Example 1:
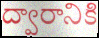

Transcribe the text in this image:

ద్వారానికి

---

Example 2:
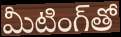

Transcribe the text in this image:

మీటింగ్‌తో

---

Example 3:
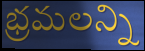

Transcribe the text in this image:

భ్రమలన్ని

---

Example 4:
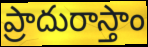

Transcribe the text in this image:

ప్రాదురాస్తాం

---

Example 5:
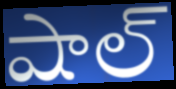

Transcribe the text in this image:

షాల్